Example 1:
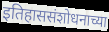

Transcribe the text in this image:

इतिहाससंशोधनाच्या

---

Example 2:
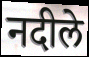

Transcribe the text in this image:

नदीले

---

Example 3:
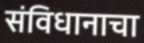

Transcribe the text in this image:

संविधानाचा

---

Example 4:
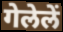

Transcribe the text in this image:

गेलेलें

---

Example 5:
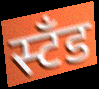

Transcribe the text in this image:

स्टँड